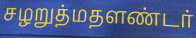
சழறுத்மதளண்டர்